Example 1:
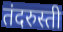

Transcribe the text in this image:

तंदरुस्ती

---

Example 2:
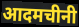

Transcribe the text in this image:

आदमचीनी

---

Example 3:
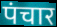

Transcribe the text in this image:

पंचार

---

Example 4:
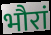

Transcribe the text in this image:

भौरां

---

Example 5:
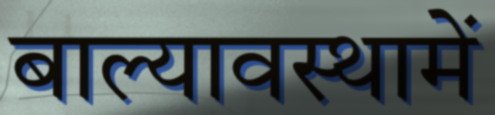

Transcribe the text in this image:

बाल्यावस्थामें